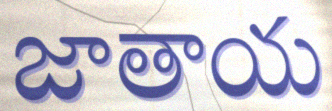
జాతాయ